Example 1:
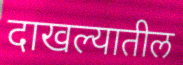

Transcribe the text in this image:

दाखल्यातील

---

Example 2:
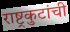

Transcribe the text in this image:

राष्ट्रकुटांची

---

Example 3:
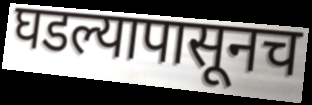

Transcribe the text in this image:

घडल्यापासूनच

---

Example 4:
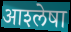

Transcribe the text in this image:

आश्‍लेषा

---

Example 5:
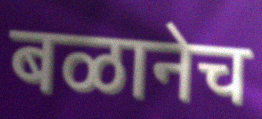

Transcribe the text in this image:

बळानेच